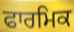
ਫਾਰਮਿਕ